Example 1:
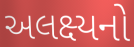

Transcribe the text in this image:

અલક્ષ્યનો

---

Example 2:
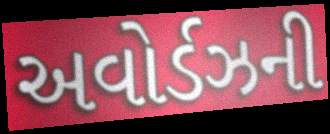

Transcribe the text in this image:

અવોર્ડઝની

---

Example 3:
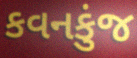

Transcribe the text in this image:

કવનકુંજ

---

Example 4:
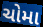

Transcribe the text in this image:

ચોમા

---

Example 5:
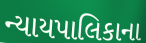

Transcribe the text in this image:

ન્યાયપાલિકાના